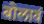
बोलावं